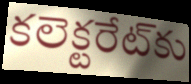
కలెక్టరేట్‌కు